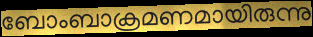
ബോംബാക്രമണമായിരുന്നു